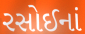
રસોઈનાં